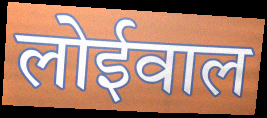
लोईवाल